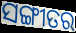
ସଙ୍ଗୀତର